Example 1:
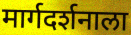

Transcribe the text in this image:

मार्गदर्शनाला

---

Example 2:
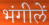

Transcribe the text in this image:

भंगीलें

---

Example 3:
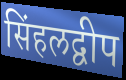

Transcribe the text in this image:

सिंहलद्वीप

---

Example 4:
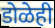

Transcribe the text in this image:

डोळेही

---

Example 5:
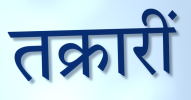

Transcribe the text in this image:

तक्रारीं